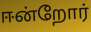
ஈன்றோர்